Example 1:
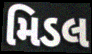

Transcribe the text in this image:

મિડલ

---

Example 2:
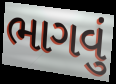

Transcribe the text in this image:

ભાગવું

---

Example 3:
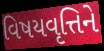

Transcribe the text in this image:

વિષયવૃત્તિને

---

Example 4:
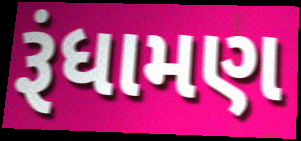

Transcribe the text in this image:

રૂંધામણ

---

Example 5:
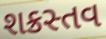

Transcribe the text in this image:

શક્રસ્તવ